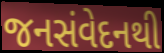
જનસંવેદનથી